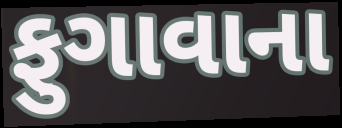
ફુગાવાના